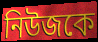
নিউজকে